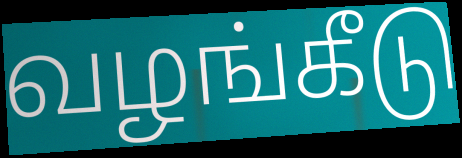
வழங்கீடு